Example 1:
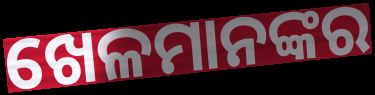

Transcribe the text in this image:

ଖେଳମାନଙ୍କର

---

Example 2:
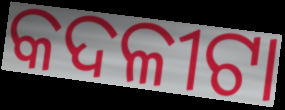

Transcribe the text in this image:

କଦଳୀଟା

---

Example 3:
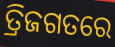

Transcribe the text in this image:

ତ୍ରିଜଗତରେ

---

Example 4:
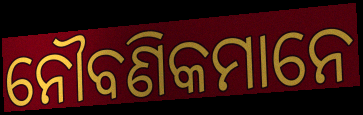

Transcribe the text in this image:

ନୌବଣିକମାନେ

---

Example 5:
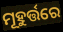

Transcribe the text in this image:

ମୂହୁର୍ତ୍ତରେ